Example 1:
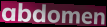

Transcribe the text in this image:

abdomen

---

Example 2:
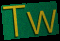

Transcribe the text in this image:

Tw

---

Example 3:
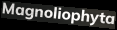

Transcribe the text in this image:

Magnoliophyta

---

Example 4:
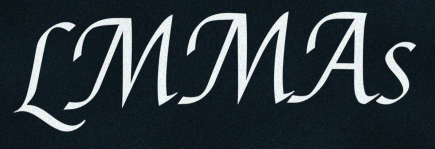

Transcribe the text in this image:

LMMAs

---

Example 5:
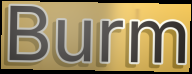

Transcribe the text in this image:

Burm